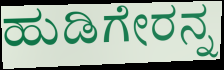
ಹುಡಿಗೇರನ್ನ